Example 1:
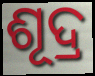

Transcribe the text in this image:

ଶୂଦ୍ର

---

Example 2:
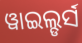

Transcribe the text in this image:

ୱାଇଲ୍ଡର୍ସ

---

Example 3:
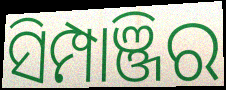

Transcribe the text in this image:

ସିମ୍ପାଞ୍ଜିର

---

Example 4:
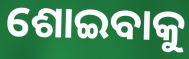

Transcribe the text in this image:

ଶୋଇବାକୁ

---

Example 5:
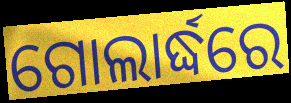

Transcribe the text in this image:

ଗୋଲାର୍ଦ୍ଧରେ